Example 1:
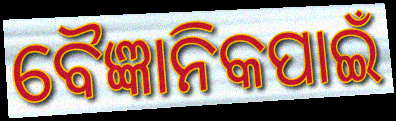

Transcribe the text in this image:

ବୈଜ୍ଞାନିକପାଇଁ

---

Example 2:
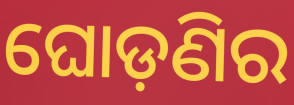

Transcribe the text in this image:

ଘୋଡ଼ଣିର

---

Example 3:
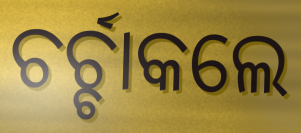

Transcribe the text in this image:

ଚର୍ଚ୍ଚାକଲେ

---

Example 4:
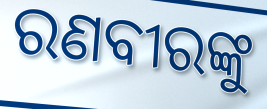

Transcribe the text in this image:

ରଣବୀରଙ୍କୁ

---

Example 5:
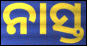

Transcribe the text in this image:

ନାସ୍ତ